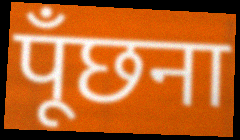
पूँछना